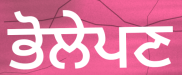
ਭੋਲੇਪਣ